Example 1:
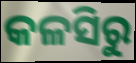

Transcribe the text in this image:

କଳସିରୁ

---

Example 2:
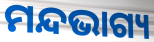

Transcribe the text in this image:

ମନ୍ଦଭାଗ୍ୟ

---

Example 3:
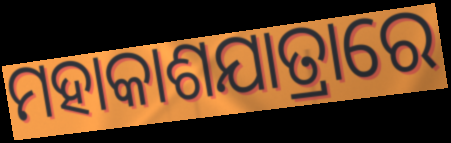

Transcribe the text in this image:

ମହାକାଶଯାତ୍ରାରେ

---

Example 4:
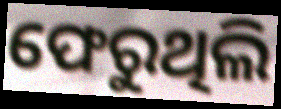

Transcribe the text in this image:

ଫେରୁଥିଲି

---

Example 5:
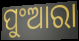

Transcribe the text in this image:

ପୁଂଆରା